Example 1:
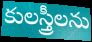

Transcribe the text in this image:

కులస్త్రీలను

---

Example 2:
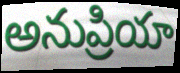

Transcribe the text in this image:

అనుప్రియా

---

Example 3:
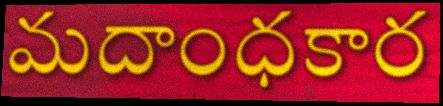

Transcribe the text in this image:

మదాంధకార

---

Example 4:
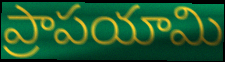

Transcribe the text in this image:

ప్రాపయామి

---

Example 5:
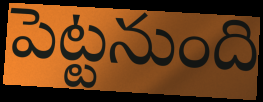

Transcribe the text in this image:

పెట్టనుంది